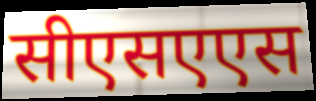
सीएसएएस